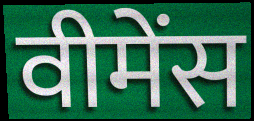
वीमेंस